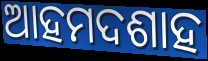
ଆହମଦଶାହ